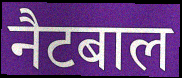
नैटबाल